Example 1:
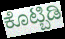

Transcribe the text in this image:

ಕೊಟ್ಬಿಡಿ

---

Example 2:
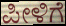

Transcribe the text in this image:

ಪೀಳಿಗೆ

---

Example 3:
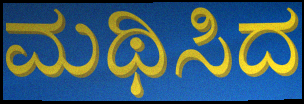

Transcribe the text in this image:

ಮಥಿಸಿದ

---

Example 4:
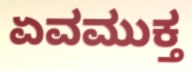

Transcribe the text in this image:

ಏವಮುಕ್ತ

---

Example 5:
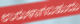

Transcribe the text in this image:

ಉರುಳಾಗಬಹುದು